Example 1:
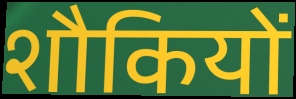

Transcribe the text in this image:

शौकियों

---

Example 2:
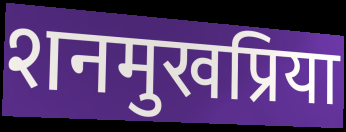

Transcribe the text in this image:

शनमुखप्रिया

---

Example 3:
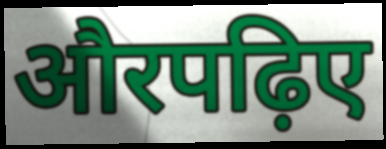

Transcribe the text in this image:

औरपढ़िए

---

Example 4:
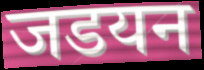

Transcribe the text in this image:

जडयन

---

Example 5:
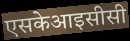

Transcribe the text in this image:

एसकेआइसीसी